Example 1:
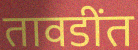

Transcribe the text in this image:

तावडींत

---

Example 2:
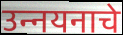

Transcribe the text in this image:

उन्नयनाचे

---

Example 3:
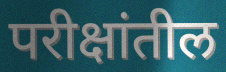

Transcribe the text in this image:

परीक्षांतील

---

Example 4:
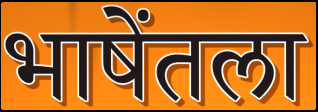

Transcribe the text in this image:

भाषेंतला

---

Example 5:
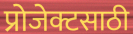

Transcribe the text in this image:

प्रोजेक्टसाठी